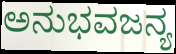
ಅನುಭವಜನ್ಯ